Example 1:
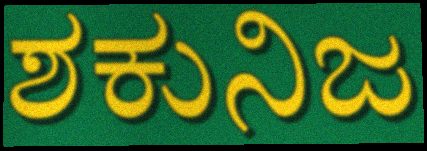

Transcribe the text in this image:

ಶಕುನಿಜ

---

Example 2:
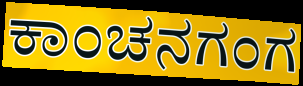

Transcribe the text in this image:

ಕಾಂಚನಗಂಗ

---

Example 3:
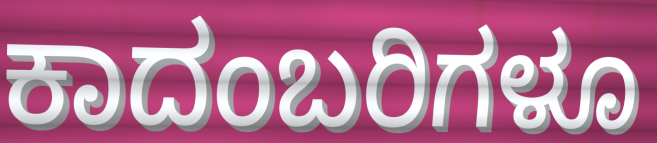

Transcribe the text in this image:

ಕಾದಂಬರಿಗಳೂ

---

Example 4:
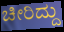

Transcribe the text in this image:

ಚೀರಿದ್ದು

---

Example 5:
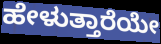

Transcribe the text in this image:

ಹೇಳುತ್ತಾರೆಯೇ